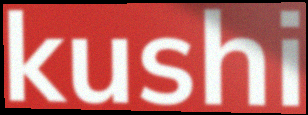
kushi